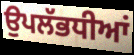
ਉਪਲੱਭਧੀਆਂ